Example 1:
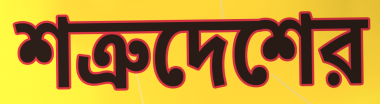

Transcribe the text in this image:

শত্রুদেশের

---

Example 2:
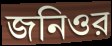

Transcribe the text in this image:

জনিওর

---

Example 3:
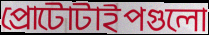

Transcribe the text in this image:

প্রোটোটাইপগুলো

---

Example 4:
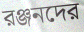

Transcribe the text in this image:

রঞ্জনদের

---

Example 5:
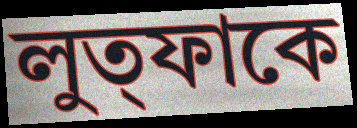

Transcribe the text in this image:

লুত্ফাকে